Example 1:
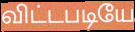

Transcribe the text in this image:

விட்டபடியே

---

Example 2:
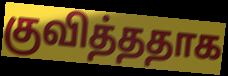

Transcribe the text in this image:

குவித்ததாக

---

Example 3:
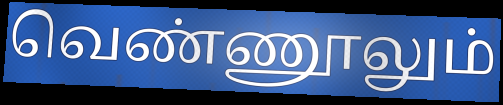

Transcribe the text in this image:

வெண்ணூலும்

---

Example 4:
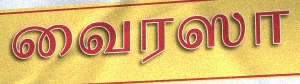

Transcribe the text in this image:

வைரஸா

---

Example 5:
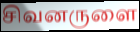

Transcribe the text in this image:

சிவனருளை